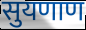
सुयणाण